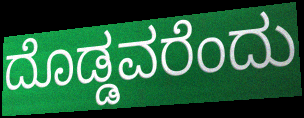
ದೊಡ್ಡವರೆಂದು